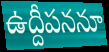
ఉద్దీపననూ